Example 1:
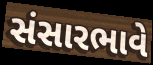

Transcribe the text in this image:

સંસારભાવે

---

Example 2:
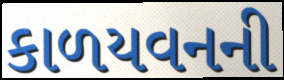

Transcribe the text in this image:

કાળયવનની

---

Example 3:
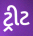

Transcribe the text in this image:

ટ્રીટ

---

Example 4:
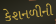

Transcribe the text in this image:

કેશનળીની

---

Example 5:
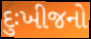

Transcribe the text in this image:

દુઃખીજનો